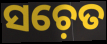
ସଚ଼େତ